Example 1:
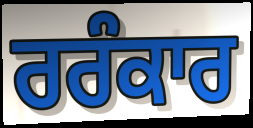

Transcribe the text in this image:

ਰਰੰਕਾਰ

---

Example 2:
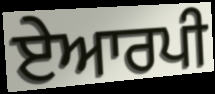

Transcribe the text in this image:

ਏਆਰਪੀ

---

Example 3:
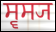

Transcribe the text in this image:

ਸ੍ਵਸ੍ਯ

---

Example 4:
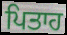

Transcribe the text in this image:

ਪਿਤਾਹ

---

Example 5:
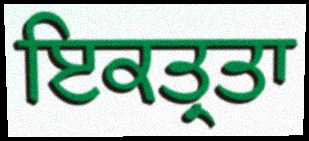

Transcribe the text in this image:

ਇਕਤ੍ਰਤਾ